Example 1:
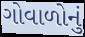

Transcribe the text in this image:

ગોવાળોનું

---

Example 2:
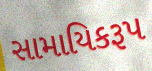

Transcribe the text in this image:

સામાયિકરૂપ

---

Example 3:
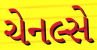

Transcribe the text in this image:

ચેનલ્સે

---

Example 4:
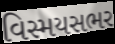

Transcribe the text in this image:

વિસ્મયસભર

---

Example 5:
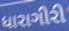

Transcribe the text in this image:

ધારાગીરી